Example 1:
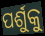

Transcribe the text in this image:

ପର୍ଶୁକୁ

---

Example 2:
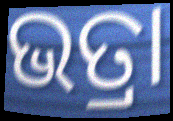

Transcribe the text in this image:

ଭତ୍ରା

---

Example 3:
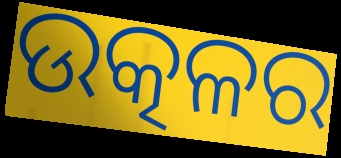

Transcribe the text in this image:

ଉତ୍କଳର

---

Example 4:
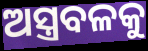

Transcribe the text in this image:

ଅସ୍ତ୍ରବଳକୁ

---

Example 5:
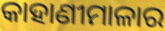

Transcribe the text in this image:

କାହାଣୀମାଳାର